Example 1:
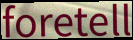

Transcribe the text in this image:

foretell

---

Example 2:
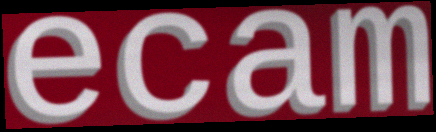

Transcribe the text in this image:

ecam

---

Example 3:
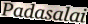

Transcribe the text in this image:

Padasalai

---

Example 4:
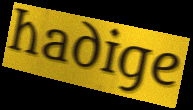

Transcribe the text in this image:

hadige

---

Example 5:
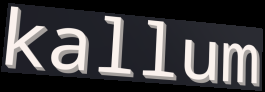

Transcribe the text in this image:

kallum